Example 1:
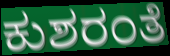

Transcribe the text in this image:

ಕುಶರಂತೆ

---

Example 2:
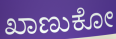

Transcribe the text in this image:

ಖಾಣುಕೋ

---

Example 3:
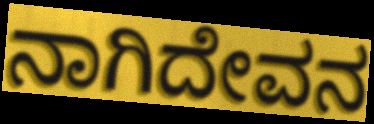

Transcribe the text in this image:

ನಾಗಿದೇವನ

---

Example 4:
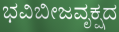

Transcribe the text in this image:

ಭವಿಬೀಜವೃಕ್ಷದ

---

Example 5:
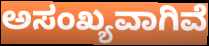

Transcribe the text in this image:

ಅಸಂಖ್ಯವಾಗಿವೆ